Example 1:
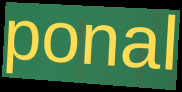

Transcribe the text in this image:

ponal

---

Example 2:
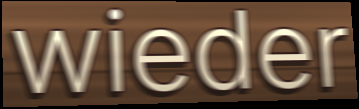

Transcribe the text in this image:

wieder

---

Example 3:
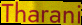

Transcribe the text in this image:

Tharani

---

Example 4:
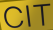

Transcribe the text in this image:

CIT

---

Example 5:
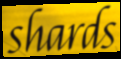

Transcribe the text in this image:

shards